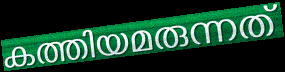
കത്തിയമരുന്നത്